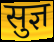
सुज्ञ